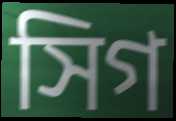
সিগ